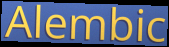
Alembic